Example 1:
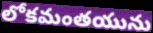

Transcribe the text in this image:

లోకమంతయును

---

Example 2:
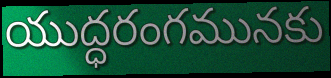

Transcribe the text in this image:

యుద్ధరంగమునకు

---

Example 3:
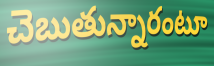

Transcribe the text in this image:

చెబుతున్నారంటూ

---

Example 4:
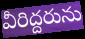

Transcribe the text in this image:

వీరిద్దరును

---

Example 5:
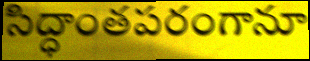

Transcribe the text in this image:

సిద్ధాంతపరంగానూ